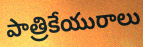
పాత్రికేయురాలు